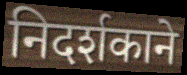
निदर्शकाने